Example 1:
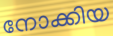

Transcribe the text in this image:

നോക്കിയ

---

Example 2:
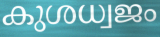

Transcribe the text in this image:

കുശധ്വജം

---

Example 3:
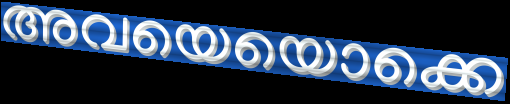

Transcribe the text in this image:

അവയെയൊക്കെ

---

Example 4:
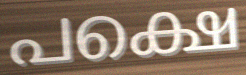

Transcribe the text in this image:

പക്ഷെ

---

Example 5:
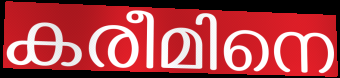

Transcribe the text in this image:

കരീമിനെ